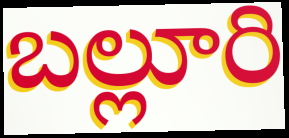
బల్లూరి